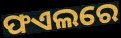
ଫଏଲରେ